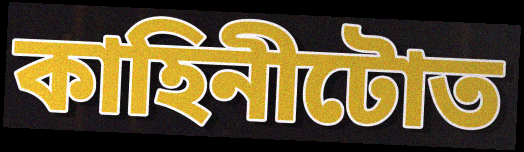
কাহিনীটোত